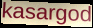
kasargod